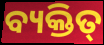
ବ୍ୟକ୍ତିତ୍